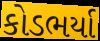
કોડભર્યા